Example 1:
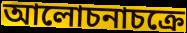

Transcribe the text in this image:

আলোচনাচক্রে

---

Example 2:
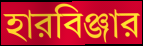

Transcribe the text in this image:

হারবিঞ্জার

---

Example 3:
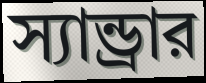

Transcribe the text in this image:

স্যান্ড্রার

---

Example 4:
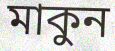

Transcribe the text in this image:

মাকুন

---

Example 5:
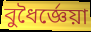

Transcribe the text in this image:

বুধৈর্জ্ঞেয়া